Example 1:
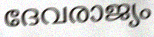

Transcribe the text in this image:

ദേവരാജ്യം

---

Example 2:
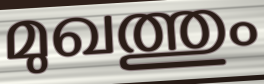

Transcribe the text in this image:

മുഖത്തും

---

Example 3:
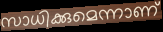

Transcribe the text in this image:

സാധിക്കുമെന്നാണ്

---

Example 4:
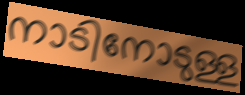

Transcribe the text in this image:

നാടിനോടുള്ള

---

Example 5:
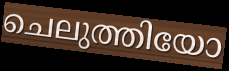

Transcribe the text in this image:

ചെലുത്തിയോ